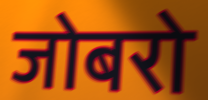
जोबरो